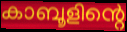
കാബൂളിന്റെ